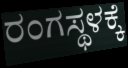
ರಂಗಸ್ಥಳಕ್ಕೆ